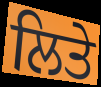
ਲਿਤੇ